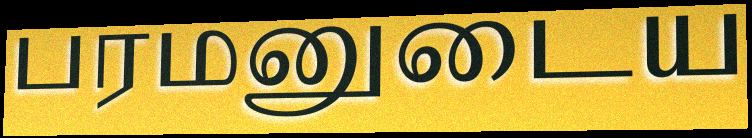
பரமனுடைய